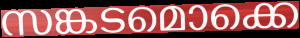
സങ്കടമൊക്കെ